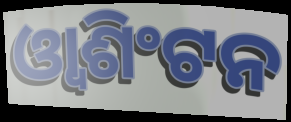
ଓ୍ୱାଶିଂଟନ